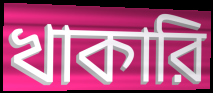
খাকারি